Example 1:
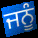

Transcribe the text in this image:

ਜਨੂੰ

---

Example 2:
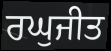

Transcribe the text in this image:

ਰਘੁਜੀਤ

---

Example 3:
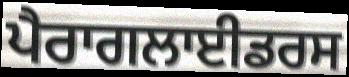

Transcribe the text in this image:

ਪੈਰਾਗਲਾਈਡਰਸ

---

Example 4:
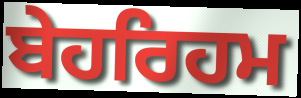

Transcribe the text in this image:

ਬੇਹਰਿਹਮ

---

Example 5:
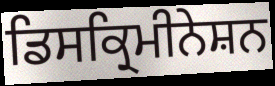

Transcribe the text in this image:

ਡਿਸਕ੍ਰਿਮੀਨੇਸ਼ਨ